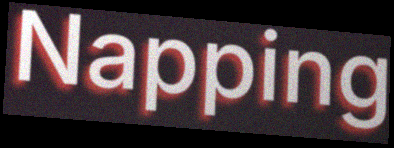
Napping